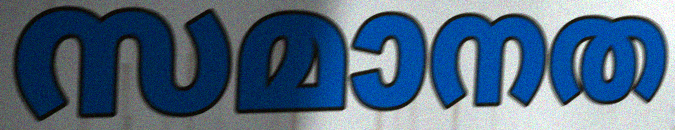
സമാനത